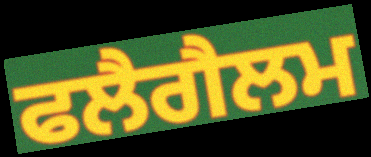
ਫਲੈਗੈਲਮ